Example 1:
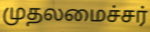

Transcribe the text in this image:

முதலமைச்சர்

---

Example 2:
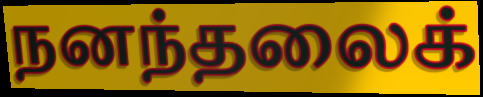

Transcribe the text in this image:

நனந்தலைக்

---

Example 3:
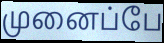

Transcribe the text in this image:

முனைப்பே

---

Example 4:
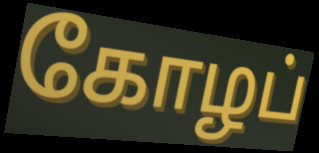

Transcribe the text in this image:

கோழப்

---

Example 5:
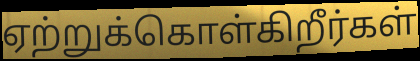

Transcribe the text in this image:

ஏற்றுக்கொள்கிறீர்கள்